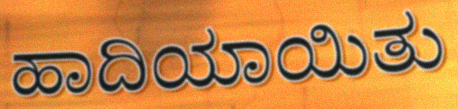
ಹಾದಿಯಾಯಿತು